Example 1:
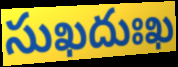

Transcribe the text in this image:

సుఖదుఃఖ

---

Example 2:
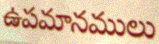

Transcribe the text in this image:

ఉపమానములు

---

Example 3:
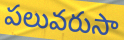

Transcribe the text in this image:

పలువరుసా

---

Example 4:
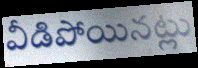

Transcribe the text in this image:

వీడిపోయినట్లు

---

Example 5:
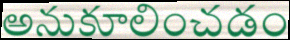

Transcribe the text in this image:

అనుకూలించడం